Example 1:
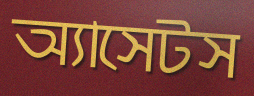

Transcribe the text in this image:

অ্যাসেটস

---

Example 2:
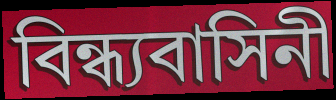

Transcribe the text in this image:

বিন্ধ্যবাসিনী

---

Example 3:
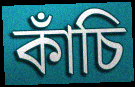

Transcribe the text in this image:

কাঁচি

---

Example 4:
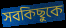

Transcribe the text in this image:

সবকিছুকে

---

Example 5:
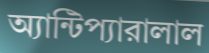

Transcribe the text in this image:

অ্যান্টিপ্যারালাল